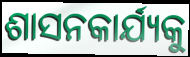
ଶାସନକାର୍ଯ୍ୟକୁ